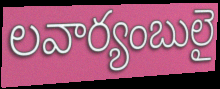
లవార్యంబులై